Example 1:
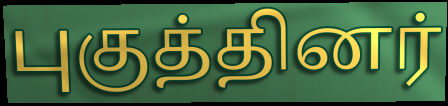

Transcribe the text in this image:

புகுத்தினர்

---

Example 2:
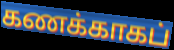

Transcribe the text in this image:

கணக்காகப்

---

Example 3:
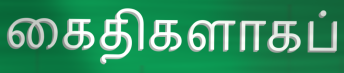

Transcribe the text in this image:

கைதிகளாகப்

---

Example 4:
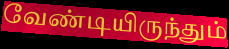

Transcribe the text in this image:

வேண்டியிருந்தும்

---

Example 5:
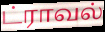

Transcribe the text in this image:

ட்ராவல்